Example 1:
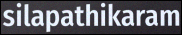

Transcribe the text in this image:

silapathikaram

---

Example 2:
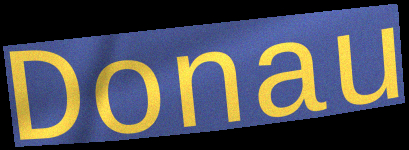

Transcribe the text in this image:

Donau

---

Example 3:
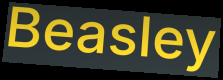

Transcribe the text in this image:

Beasley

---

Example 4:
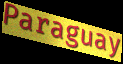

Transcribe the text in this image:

Paraguay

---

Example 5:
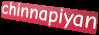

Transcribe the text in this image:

chinnapiyan